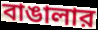
বাঙালার